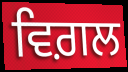
ਵਿਗ਼ਲ